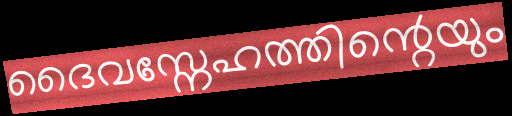
ദൈവസ്നേഹത്തിന്റെയും